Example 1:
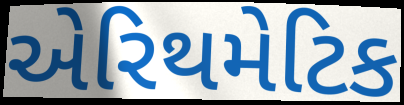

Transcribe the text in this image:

એરિથમેટિક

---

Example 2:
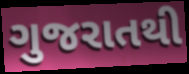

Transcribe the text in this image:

ગુજરાતથી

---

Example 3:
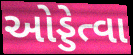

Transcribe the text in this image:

ઓડ્ડેત્વા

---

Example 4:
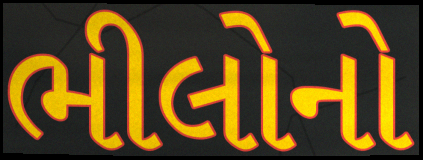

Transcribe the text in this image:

ભીલોનો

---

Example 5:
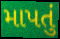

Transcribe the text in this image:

માપતું